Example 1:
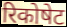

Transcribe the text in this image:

रिकोषेट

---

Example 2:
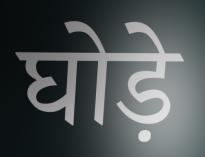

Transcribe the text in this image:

घोड़े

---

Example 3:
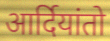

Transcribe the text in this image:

आर्दियांतो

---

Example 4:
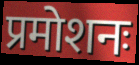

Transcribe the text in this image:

प्रमोशनः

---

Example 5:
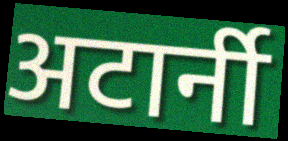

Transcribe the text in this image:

अटार्नी